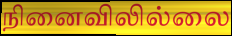
நினைவிலில்லை